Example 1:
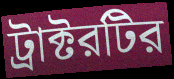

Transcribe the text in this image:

ট্রাক্টরটির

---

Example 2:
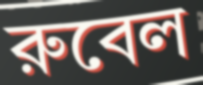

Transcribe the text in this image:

রুবেল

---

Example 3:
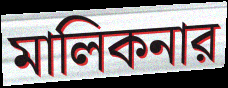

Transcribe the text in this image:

মালিকনার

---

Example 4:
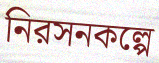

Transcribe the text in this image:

নিরসনকল্পে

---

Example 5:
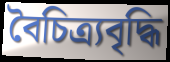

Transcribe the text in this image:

বৈচিত্র্যবৃদ্ধি